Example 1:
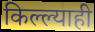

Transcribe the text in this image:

किल्ल्याही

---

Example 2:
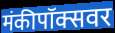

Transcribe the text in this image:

मंकीपॉक्सवर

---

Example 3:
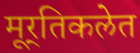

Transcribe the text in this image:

मूर्तिकलेत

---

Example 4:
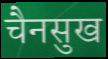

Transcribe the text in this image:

चैनसुख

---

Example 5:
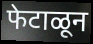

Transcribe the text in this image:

फेटाळून